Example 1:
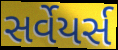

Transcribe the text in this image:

સર્વેયર્સ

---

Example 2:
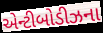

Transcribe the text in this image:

એન્ટીબોડીઝના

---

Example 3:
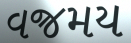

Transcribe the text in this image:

વજ્રમય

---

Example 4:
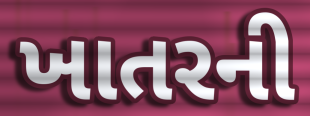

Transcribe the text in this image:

ખાતરની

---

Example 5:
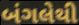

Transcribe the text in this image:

બંગલેથી